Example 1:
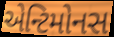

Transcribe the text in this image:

એન્ટિમોનસ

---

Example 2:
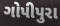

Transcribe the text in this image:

ગોપીપુરા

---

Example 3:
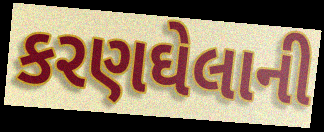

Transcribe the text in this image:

કરણઘેલાની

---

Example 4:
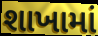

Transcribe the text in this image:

શાખામાં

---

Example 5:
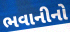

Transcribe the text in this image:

ભવાનીનો